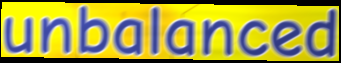
unbalanced